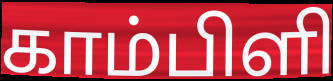
காம்பிளி